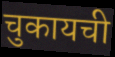
चुकायची